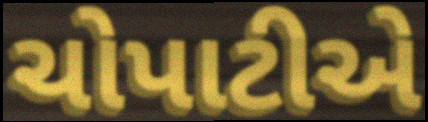
ચોપાટીએ